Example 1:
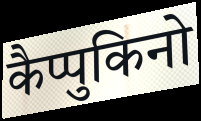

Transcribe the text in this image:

कैप्पुकिनो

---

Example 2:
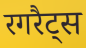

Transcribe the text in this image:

रगरैट्स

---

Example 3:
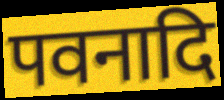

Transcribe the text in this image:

पवनादि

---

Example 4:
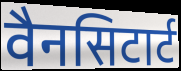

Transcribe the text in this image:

वैनसिटार्ट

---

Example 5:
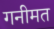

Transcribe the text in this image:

गनीमत